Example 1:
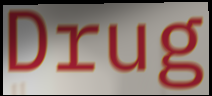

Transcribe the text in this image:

Drug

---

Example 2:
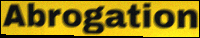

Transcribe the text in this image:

Abrogation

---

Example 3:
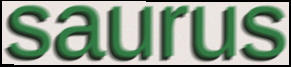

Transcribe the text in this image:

saurus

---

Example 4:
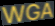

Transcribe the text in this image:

WGA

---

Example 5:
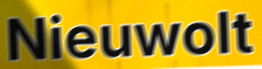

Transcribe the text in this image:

Nieuwolt